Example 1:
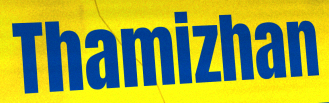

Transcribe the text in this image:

Thamizhan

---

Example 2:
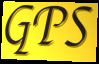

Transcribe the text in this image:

GPS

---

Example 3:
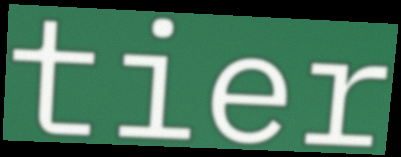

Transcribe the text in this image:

tier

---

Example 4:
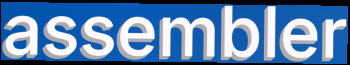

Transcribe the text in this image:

assembler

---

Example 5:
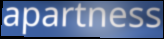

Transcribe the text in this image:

apartness